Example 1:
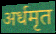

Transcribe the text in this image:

अर्धमृत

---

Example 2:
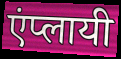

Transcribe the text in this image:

एंप्लायी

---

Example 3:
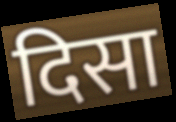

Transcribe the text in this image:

दिसा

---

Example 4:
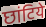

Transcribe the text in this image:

छांटिये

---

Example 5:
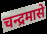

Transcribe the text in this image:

चन्द्रमासे